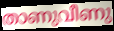
താണുവീണു